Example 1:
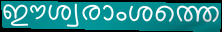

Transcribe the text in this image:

ഈശ്വരാംശത്തെ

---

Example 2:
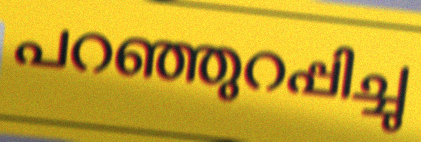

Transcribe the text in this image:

പറഞ്ഞുറപ്പിച്ചു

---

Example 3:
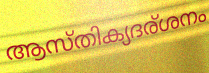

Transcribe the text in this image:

ആസ്തിക്യദര്ശനം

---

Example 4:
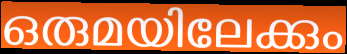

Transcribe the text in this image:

ഒരുമയിലേക്കും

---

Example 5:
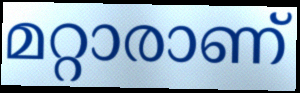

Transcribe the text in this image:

മറ്റാരാണ്